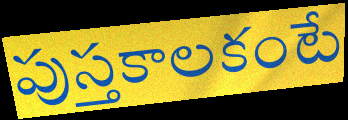
పుస్తకాలకంటే